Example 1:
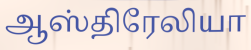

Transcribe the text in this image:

ஆஸ்திரேலியா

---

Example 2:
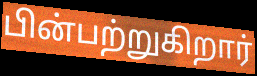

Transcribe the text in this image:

பின்பற்றுகிறார்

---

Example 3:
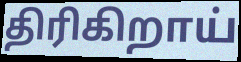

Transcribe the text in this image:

திரிகிறாய்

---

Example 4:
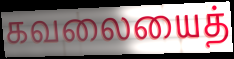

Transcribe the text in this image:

கவலையைத்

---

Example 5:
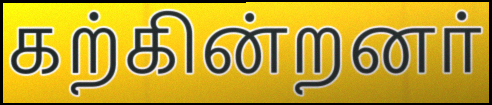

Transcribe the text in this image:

கற்கின்றனர்